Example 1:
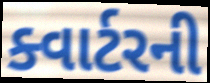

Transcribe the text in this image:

ક્વાર્ટરની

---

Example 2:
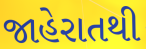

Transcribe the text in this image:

જાહેરાતથી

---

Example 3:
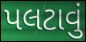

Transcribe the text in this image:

પલટાવું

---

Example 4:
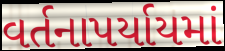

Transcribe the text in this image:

વર્તનાપર્યાયમાં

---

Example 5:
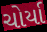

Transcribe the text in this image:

ચોર્યા